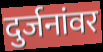
दुर्जनांवर